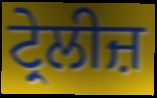
ਟ੍ਰੇਲੀਜ਼